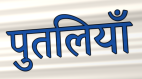
पुतलियाँ